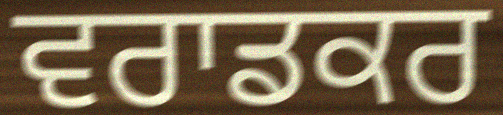
ਵਰਾਡਕਰ